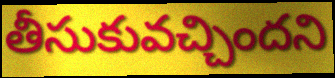
తీసుకువచ్చిందని